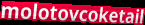
molotovcoketail